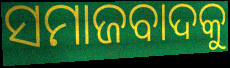
ସମାଜବାଦକୁ